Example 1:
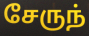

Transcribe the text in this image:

சேருந்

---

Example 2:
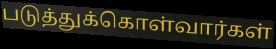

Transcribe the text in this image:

படுத்துக்கொள்வார்கள்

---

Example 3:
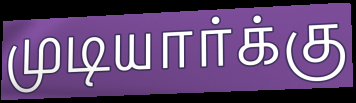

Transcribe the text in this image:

முடியார்க்கு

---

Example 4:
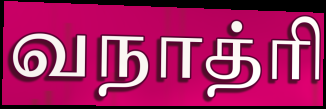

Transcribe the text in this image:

வநாத்ரி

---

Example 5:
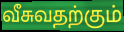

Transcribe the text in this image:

வீசுவதற்கும்